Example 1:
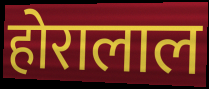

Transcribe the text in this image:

होरालाल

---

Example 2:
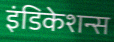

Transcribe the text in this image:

इंडिकेशन्स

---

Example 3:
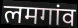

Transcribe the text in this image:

लमगांव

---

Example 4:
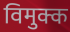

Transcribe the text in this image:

विमुक्क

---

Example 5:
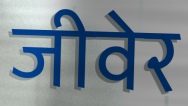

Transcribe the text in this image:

जीवेर